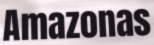
Amazonas